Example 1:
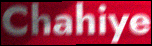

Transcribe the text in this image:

Chahiye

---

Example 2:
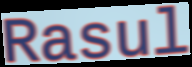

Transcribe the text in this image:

Rasul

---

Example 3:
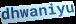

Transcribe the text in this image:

dhwaniyu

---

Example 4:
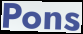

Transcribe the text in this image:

Pons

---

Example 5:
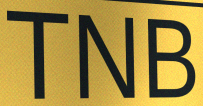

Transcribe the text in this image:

TNB